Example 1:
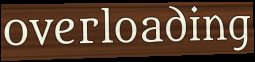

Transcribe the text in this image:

overloading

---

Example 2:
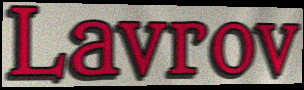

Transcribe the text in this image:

Lavrov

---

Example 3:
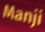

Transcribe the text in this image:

Manji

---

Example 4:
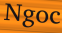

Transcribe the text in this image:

Ngoc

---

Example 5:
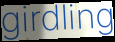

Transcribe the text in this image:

girdling